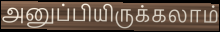
அனுப்பியிருக்கலாம்